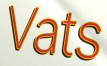
Vats